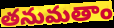
తనుమతాం